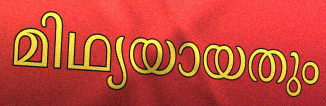
മിഥ്യയായതും